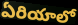
ఏరియాలో